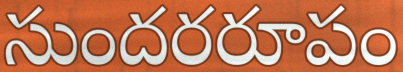
సుందరరూపం